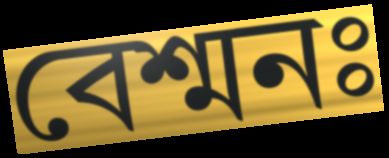
বেশ্মনঃ